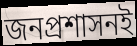
জনপ্রশাসনই